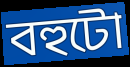
বহুটো